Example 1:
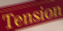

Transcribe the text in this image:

Tension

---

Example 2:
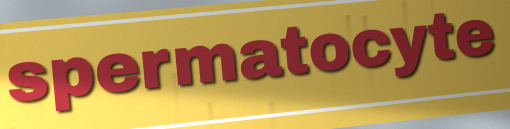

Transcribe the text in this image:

spermatocyte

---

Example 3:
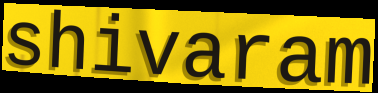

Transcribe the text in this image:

shivaram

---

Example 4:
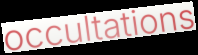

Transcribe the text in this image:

occultations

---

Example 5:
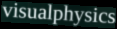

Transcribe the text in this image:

visualphysics